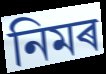
নিমৰ